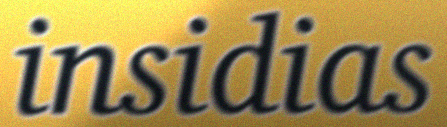
insidias